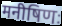
मनीषिणः